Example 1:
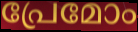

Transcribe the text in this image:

പ്രേമോം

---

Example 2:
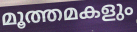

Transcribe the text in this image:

മൂത്തമകളും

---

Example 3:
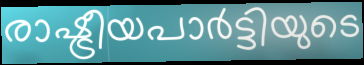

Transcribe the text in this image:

രാഷ്ട്രീയപാർട്ടിയുടെ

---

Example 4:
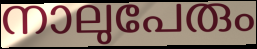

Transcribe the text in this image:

നാലുപേരും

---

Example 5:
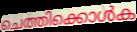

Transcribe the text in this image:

ചെത്തിക്കൊൾക